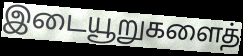
இடையூறுகளைத்